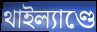
থাইল্যাণ্ডে